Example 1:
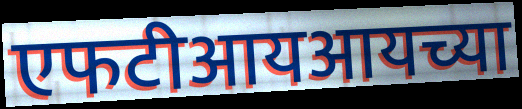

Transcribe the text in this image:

एफटीआयआयच्या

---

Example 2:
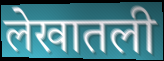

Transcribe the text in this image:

लेखातली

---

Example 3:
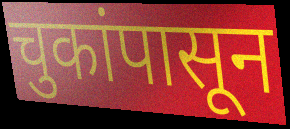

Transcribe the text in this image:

चुकांपासून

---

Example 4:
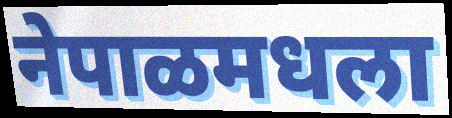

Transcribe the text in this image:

नेपाळमधला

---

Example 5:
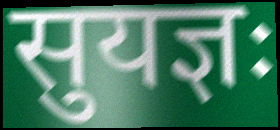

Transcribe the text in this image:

सुयज्ञः